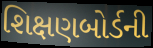
શિક્ષણબોર્ડની